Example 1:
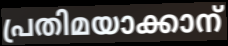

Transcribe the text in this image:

പ്രതിമയാക്കാന്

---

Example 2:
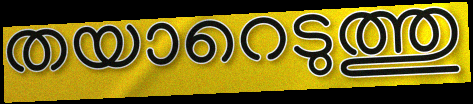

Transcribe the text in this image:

തയാറെടുത്തു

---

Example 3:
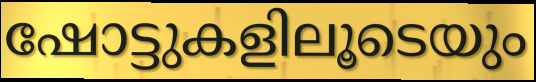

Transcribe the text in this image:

ഷോട്ടുകളിലൂടെയും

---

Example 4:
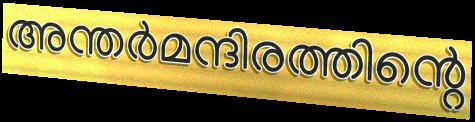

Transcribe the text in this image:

അന്തർമന്ദിരത്തിന്റെ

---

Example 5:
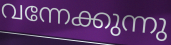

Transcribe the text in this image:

വന്നേക്കുന്നു